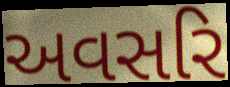
અવસરિ